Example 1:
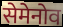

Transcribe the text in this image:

सेमेनोव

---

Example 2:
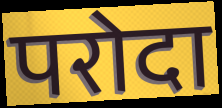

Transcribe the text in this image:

परोदा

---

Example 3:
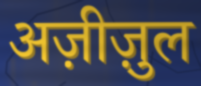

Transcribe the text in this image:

अज़ीज़ुल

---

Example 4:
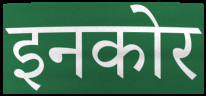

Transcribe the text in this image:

इनकोर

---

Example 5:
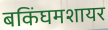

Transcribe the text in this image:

बकिंघमशायर